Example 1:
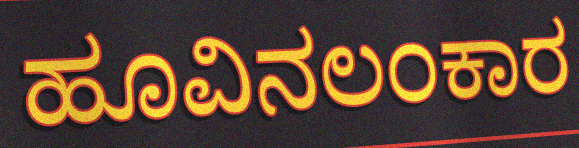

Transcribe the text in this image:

ಹೂವಿನಲಂಕಾರ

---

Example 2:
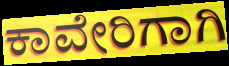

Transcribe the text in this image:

ಕಾವೇರಿಗಾಗಿ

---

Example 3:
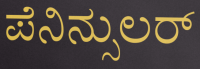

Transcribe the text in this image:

ಪೆನಿನ್ಸುಲರ್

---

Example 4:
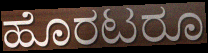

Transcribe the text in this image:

ಹೊರಟರೂ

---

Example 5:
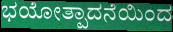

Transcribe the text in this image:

ಭಯೋತ್ಪಾದನೆಯಿಂದ